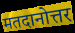
मतदानोत्तर